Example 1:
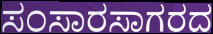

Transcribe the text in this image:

ಸಂಸಾರಸಾಗರದ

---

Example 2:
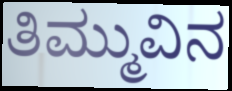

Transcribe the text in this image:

ತಿಮ್ಮುವಿನ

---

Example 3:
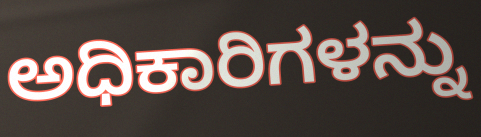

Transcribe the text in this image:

ಅಧಿಕಾರಿಗಳನ್ನು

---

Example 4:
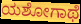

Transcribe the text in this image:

ಯಶೋಗಾಥೆ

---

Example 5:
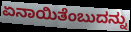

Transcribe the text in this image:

ಏನಾಯಿತೆಂಬುದನ್ನು